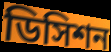
ডিসিশন